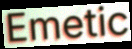
Emetic